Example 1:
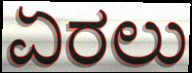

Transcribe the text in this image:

ಏರಲು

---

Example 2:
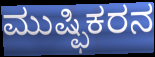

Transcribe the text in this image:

ಮುಷ್ಫಿಕರನ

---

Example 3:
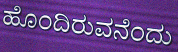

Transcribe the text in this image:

ಹೊಂದಿರುವನೆಂದು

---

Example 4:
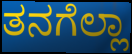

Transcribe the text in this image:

ತನಗೆಲ್ಲಾ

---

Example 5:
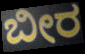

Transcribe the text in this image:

ಬೀರ